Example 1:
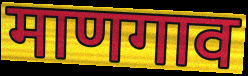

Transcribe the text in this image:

माणगाव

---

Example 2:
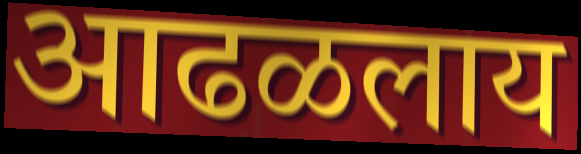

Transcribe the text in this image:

आढळलाय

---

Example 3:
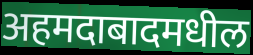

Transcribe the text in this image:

अहमदाबादमधील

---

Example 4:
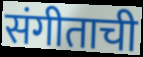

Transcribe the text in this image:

संगीताची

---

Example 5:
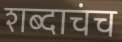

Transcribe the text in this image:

शब्दाचंच